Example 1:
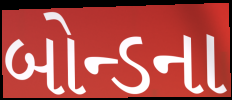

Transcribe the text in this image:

બોન્ડના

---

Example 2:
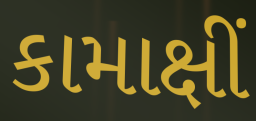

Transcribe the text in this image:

કામાક્ષીં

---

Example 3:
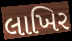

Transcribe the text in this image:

લાખિર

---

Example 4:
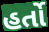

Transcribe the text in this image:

હર્તો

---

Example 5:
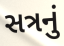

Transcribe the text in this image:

સત્રનું